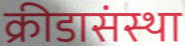
क्रीडासंस्था